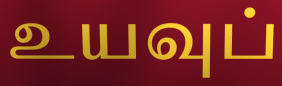
உயவுப்